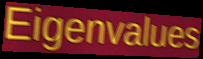
Eigenvalues